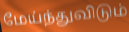
மேய்ந்துவிடும்